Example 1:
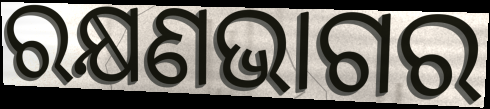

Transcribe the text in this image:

ରକ୍ଷଣଭାଗର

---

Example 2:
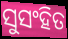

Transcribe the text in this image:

ସୁସଂହିତ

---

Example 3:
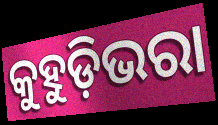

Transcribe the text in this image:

କୁହୁଡ଼ିଭରା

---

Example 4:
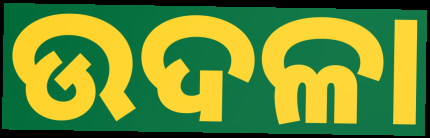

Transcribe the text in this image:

ଉଦଳା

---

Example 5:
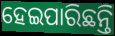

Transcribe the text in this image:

ହେଇପାରିଛନ୍ତି